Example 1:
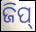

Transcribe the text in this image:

ଜିପ୍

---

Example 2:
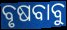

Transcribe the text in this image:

ବୃଷବାବୁ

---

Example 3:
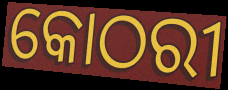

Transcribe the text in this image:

କୋଠରୀ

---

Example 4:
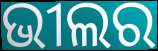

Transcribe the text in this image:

ଭୀଲର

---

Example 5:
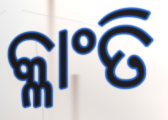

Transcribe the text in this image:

କ୍ଳାଂତି